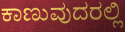
ಕಾಣುವುದರಲ್ಲಿ